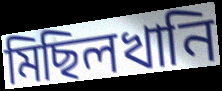
মিছিলখানি